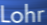
Lohr